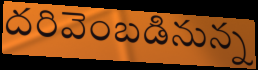
దరివెంబడినున్న